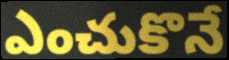
ఎంచుకొనే